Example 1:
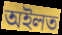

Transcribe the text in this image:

অইলত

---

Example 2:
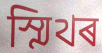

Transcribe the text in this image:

স্মিথৰ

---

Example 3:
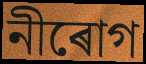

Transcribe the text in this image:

নীৰোগ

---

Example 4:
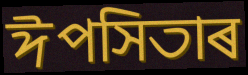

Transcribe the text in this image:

ঈপসিতাৰ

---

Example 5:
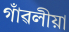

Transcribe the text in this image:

গাঁৱলীয়া